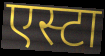
एस्टा